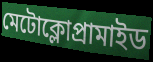
মেটোক্লোপ্রামাইড